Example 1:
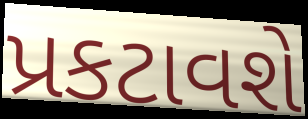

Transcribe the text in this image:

પ્રકટાવશે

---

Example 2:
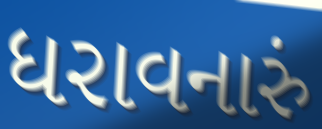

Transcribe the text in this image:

ધરાવનારું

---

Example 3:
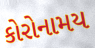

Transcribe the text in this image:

કોરોનામય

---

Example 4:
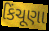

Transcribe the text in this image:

કિંચૂણા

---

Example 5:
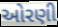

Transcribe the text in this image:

ઓરણી